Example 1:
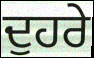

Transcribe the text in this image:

ਦੁਹਰੇ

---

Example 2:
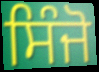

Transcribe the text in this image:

ਸਿੰਜੋ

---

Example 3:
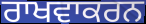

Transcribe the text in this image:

ਰਾਖਵਾਕਰਨ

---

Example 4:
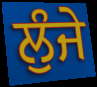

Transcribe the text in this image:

ਲੁੰਜੇ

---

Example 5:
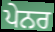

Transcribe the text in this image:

ਪੇਨਰ